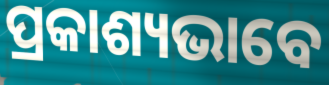
ପ୍ରକାଶ୍ୟଭାବେ